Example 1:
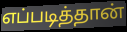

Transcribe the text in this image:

எப்படித்தான்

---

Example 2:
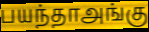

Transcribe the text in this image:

பயந்தாஅங்கு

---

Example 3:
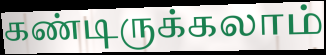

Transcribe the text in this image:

கண்டிருக்கலாம்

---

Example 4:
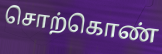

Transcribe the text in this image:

சொற்கொண்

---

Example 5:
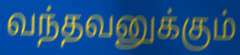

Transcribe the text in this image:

வந்தவனுக்கும்